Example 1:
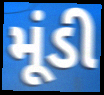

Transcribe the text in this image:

મૂંડી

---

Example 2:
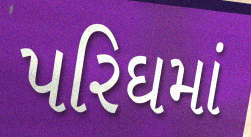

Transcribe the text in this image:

પરિઘમાં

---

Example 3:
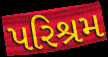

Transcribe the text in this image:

પરિશ્રમ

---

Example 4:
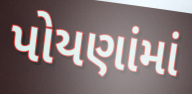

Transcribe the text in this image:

પોયણાંમાં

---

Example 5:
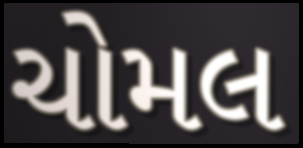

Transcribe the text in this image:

ચોમલ